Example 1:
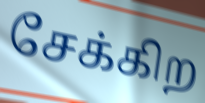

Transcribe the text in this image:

சேக்கிற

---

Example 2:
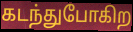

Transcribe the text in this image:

கடந்துபோகிற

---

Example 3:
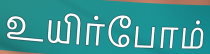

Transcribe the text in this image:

உயிர்போம்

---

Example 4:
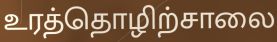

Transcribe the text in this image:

உரத்தொழிற்சாலை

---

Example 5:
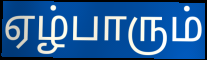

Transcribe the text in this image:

ஏழ்பாரும்